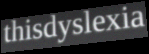
thisdyslexia